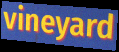
vineyard